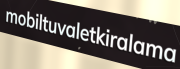
mobiltuvaletkiralama